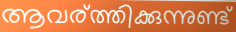
ആവര്ത്തിക്കുന്നുണ്ട്